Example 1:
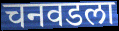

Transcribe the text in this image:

चनवडला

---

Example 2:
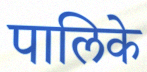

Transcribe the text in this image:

पालिके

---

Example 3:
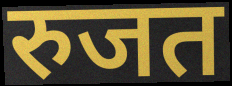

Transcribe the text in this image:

रुजत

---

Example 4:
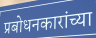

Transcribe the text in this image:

प्रबोधनकारांच्या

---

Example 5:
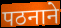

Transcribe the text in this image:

पठनाने